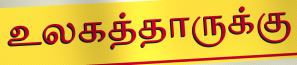
உலகத்தாருக்கு